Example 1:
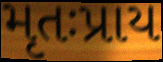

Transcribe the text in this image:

મૃતઃપ્રાય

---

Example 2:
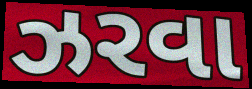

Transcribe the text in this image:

ઝરવા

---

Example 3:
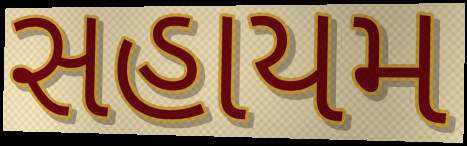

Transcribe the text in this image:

સહાયમ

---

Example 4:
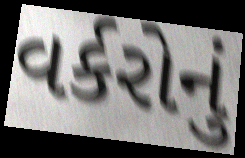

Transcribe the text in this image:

વર્કરોનું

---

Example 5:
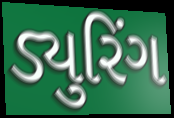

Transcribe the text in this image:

ડ્યુરિંગ